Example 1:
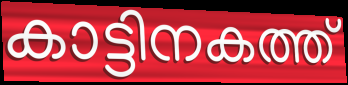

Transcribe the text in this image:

കാട്ടിനകത്ത്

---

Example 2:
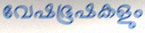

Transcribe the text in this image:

വേഷഭൂഷകളും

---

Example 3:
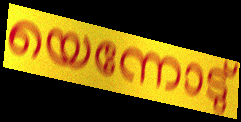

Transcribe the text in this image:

യെന്നോടു്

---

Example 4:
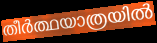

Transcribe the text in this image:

തീർത്ഥയാത്രയിൽ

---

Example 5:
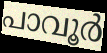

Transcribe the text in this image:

പാവൂർ